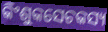
କିଂଶୁକସେଚକସ୍ୟ